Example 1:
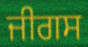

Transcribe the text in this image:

ਜੀਗਸ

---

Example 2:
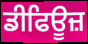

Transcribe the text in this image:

ਡੀਫਿਊਜ਼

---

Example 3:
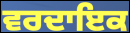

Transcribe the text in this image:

ਵਰਦਾਇਕ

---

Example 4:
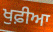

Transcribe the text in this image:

ਖੁਫ਼ੀਆ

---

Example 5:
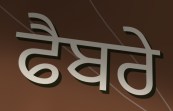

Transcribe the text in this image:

ਫੈਬਰੇ